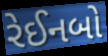
રેઈનબો